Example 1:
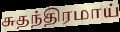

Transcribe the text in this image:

சுதந்திரமாய்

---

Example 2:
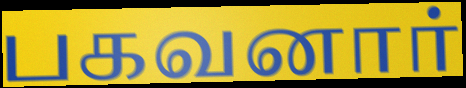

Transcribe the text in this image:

பகவனார்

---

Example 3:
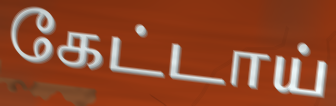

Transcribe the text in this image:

கேட்டாய்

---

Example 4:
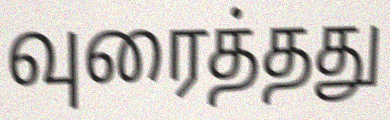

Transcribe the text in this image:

வுரைத்தது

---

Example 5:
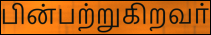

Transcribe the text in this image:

பின்பற்றுகிறவர்